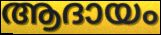
ആദായം